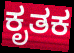
ಕೃತಕ